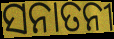
ସନାତନୀ